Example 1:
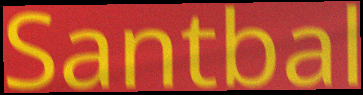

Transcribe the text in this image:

Santbal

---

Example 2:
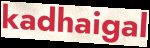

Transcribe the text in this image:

kadhaigal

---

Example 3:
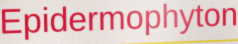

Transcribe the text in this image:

Epidermophyton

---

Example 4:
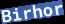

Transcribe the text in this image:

Birhor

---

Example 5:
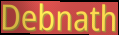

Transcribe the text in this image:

Debnath